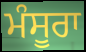
ਮੰਸੂਰਾ